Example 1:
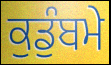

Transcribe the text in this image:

ਕੁਡੁੰਬਮੇ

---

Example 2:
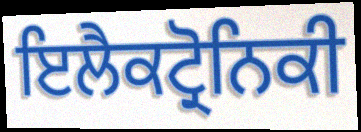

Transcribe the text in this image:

ਇਲੈਕਟ੍ਰੋਨਿਕੀ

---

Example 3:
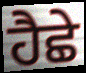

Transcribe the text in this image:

ਹੈਛੇ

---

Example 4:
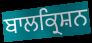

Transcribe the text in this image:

ਬਾਲਕ੍ਰਿਸ਼ਨ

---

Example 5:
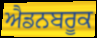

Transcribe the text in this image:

ਐਡਨਬਰੂਕ